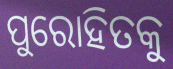
ପୁରୋହିତକୁ